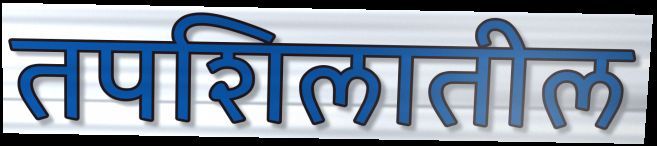
तपशिलातील